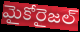
మైకోరైజల్